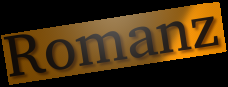
Romanz